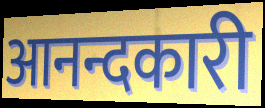
आनन्दकारी